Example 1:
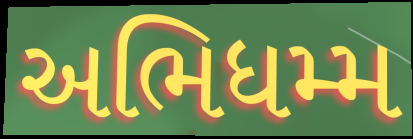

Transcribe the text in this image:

અભિધમ્મ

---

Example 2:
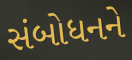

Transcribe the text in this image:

સંબોધનને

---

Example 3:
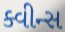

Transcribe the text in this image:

ક્વીન્સ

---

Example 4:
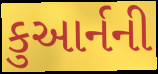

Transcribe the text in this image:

કુઆર્નની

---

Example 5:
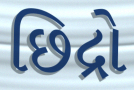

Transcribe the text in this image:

છિદ્રો